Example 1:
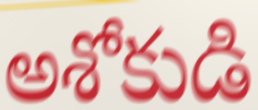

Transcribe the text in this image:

అశోకుడి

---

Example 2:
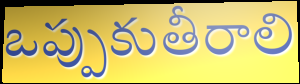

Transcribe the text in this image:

ఒప్పుకుతీరాలి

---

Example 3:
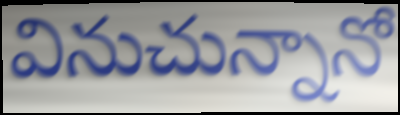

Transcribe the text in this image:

వినుచున్నానో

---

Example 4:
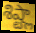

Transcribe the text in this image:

శిష్ట్లా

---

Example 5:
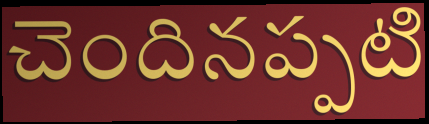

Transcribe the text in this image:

చెందినప్పటి